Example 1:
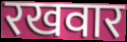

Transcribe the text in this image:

रखवार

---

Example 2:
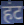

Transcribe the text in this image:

हंट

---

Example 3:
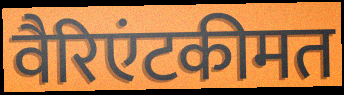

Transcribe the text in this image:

वैरिएंटकीमत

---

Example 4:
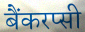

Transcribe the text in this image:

बैंकरप्सी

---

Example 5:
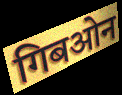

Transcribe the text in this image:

गिबओन